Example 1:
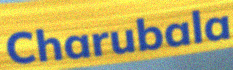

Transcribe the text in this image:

Charubala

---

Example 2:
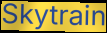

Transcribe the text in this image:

Skytrain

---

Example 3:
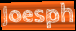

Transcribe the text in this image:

Joesph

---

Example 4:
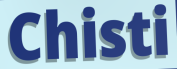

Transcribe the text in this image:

Chisti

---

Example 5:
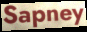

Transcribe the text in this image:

Sapney